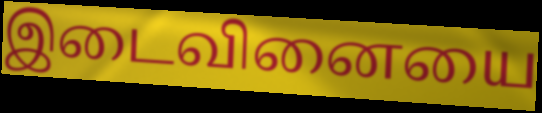
இடைவினையை